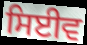
ਸਿਈਵ